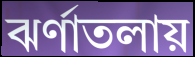
ঝর্ণাতলায়